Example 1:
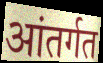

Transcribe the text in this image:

आंतर्गत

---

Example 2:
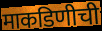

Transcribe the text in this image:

माकडिणीची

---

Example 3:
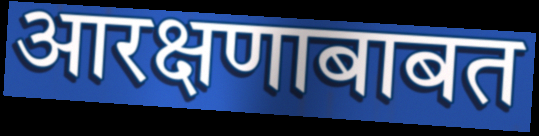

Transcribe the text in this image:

आरक्षणाबाबत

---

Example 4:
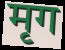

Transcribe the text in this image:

मृग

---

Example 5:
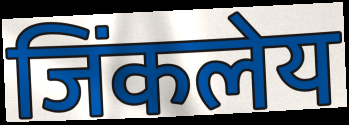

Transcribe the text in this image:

जिंकलेय